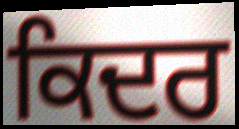
ਕਿਦਰ